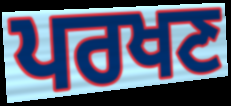
ਪਰਖਣ